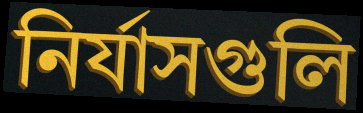
নির্যাসগুলি